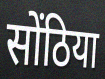
सोंठिया